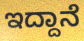
ಇದ್ದಾನೆ